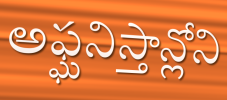
అఫ్ఘనిస్తాన్లోని